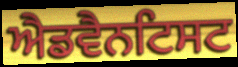
ਐਡਵੈਨਟਿਸਟ